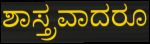
ಶಾಸ್ತ್ರವಾದರೂ